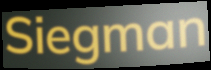
Siegman